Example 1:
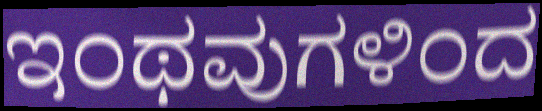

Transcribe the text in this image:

ಇಂಥವುಗಳಿಂದ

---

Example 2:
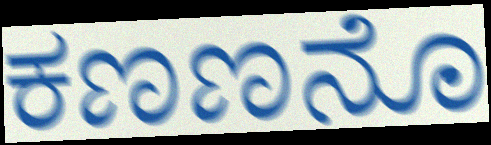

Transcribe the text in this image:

ಕಣಣನೊ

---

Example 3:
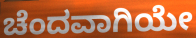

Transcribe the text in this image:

ಚೆಂದವಾಗಿಯೇ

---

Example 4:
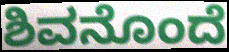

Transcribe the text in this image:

ಶಿವನೊಂದೆ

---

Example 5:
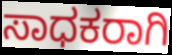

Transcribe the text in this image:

ಸಾಧಕರಾಗಿ